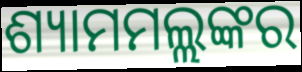
ଶ୍ୟାମମଲ୍ଲଙ୍କର